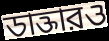
ডাক্তারও